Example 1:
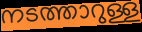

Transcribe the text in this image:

നടത്താറുള്ള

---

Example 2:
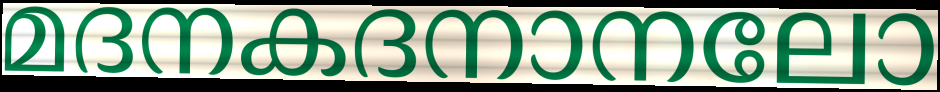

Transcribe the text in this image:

മദനകദനാനലോ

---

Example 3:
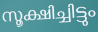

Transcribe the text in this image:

സൂക്ഷിച്ചിട്ടും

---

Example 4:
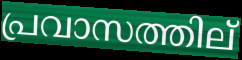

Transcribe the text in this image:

പ്രവാസത്തില്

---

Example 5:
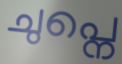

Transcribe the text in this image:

ചുപ്നെ